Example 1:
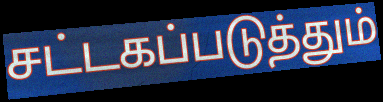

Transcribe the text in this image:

சட்டகப்படுத்தும்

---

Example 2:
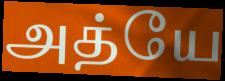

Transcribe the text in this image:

அத்யே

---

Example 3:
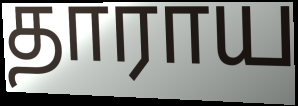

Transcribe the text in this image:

தாராய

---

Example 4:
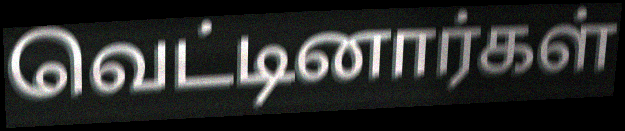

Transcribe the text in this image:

வெட்டினார்கள்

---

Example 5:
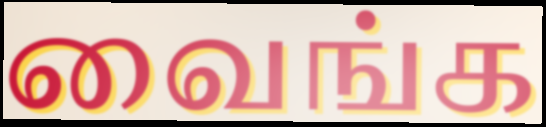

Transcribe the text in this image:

வைங்க